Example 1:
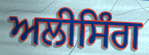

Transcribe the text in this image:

ਅਲੀਸਿੰਗ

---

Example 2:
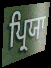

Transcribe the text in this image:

ਪ੍ਰਿਯਾ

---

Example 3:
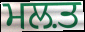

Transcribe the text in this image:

ਮਲ਼ਤ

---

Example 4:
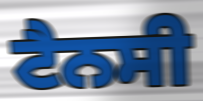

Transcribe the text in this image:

ਟੈਨਸੀ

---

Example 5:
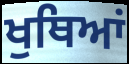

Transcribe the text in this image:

ਖੁਥਿਆਂ